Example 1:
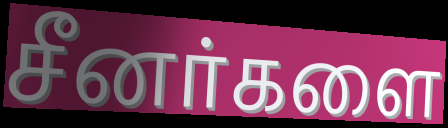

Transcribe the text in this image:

சீனர்களை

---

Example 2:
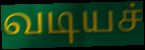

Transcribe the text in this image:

வடியச்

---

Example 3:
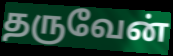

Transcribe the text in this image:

தருவேன்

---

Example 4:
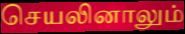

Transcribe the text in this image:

செயலினாலும்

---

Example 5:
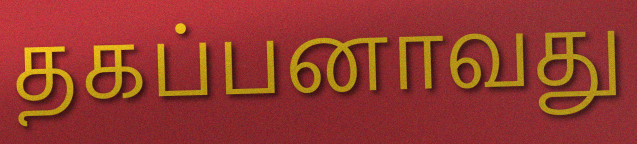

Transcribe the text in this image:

தகப்பனாவது